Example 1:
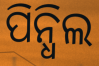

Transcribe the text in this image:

ପିନ୍ଧିଲ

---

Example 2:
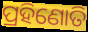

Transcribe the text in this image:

ପ୍ରହିଣୋତି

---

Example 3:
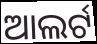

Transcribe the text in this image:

ଆଲର୍ଟ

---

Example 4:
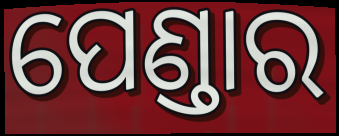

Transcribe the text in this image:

ପେଣ୍ଡାର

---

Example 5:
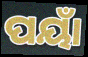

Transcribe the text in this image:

ପୟାଁ